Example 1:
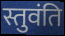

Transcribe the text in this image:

स्तुवंति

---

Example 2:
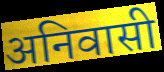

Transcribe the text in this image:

अनिवासी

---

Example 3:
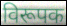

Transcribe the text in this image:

विरूपक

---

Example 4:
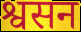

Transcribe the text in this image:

श्वसन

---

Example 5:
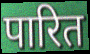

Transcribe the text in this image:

पारित